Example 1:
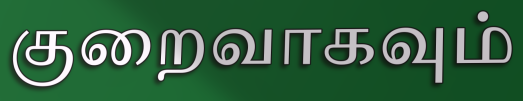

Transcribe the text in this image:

குறைவாகவும்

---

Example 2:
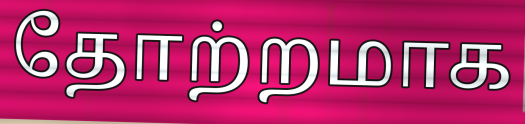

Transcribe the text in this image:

தோற்றமாக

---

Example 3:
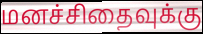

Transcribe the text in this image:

மனச்சிதைவுக்கு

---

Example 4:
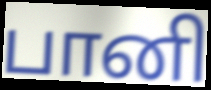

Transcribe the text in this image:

பானி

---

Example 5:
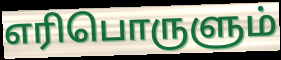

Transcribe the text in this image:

எரிபொருளும்